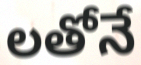
లతోనే